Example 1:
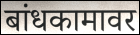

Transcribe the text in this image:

बांधकामावर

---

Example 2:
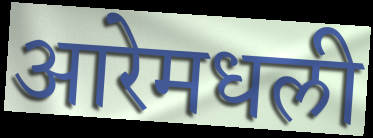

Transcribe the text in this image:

आरेमधली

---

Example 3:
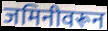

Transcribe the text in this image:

जमिनीवरून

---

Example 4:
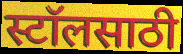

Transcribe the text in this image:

स्टॉलसाठी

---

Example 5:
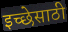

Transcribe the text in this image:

इच्छेसाठी